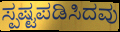
ಸ್ಪಷ್ಟಪಡಿಸಿದವು